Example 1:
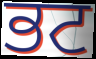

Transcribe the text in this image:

ਭਟ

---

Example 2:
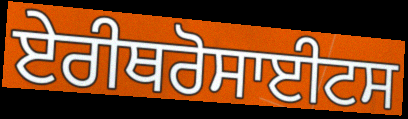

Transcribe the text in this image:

ਏਰੀਥਰੋਸਾਈਟਸ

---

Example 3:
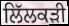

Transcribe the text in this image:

ਲਿੱਲਕੜੀ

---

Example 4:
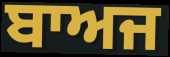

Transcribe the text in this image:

ਬਾਅਜ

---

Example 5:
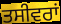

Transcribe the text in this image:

ਤਸੀਵਰਾਂ